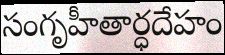
సంగృహీతార్ధదేహం